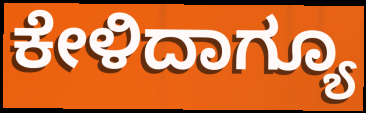
ಕೇಳಿದಾಗ್ಯೂ